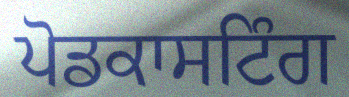
ਪੋਡਕਾਸਟਿੰਗ